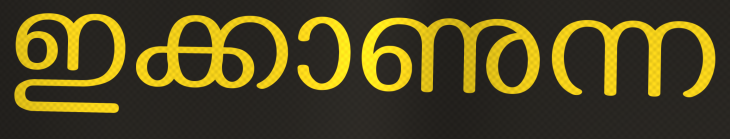
ഇക്കാണുന്ന